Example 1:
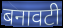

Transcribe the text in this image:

बनावटी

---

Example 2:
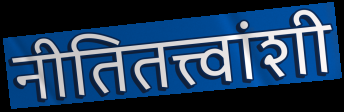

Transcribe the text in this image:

नीतितत्त्वांशी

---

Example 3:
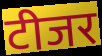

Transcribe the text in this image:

टीजर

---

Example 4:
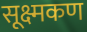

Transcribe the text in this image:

सूक्ष्मकण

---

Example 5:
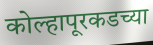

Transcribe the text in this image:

कोल्हापूरकडच्या